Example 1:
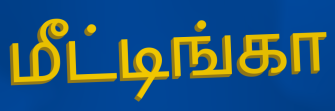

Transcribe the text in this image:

மீட்டிங்கா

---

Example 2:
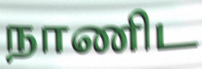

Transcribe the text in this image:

நாணிட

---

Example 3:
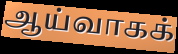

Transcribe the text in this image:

ஆய்வாகக்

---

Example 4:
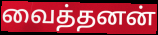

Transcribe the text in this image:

வைத்தனன்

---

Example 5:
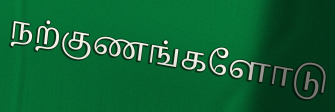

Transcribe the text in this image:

நற்குணங்களோடு